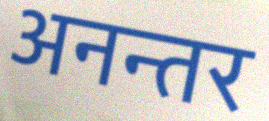
अनन्तर